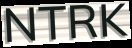
NTRK